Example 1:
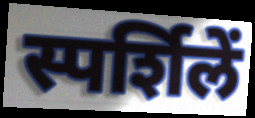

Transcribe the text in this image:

स्पर्शिलें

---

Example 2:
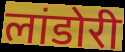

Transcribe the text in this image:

लांडोरी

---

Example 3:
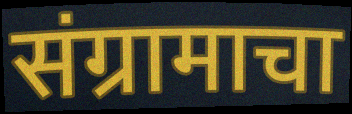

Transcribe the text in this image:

संग्रामाचा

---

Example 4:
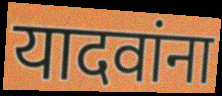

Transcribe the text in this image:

यादवांना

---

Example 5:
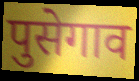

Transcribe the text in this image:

पुसेगाव